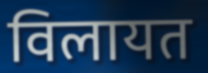
विलायत